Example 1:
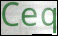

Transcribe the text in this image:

Ceq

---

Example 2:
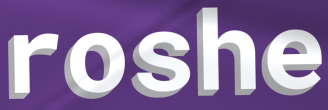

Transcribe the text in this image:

roshe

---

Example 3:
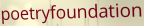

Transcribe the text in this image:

poetryfoundation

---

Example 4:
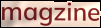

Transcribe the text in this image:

magzine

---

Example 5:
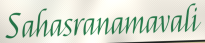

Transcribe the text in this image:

Sahasranamavali